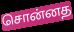
சொன்னத